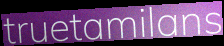
truetamilans